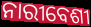
ନାରୀବେଶୀ